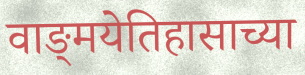
वाङ्‌मयेतिहासाच्या